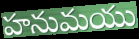
హనుమయు